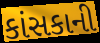
કાંસકાની